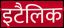
इटैलिक